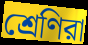
শ্রেণিরা